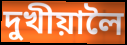
দুখীয়ালৈ